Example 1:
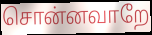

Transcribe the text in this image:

சொன்னவாறே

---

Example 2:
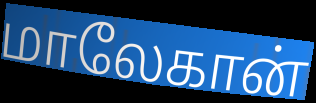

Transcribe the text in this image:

மாலேகான்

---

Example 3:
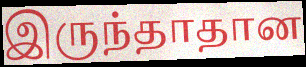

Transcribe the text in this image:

இருந்தாதான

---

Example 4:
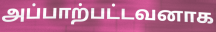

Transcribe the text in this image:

அப்பாற்பட்டவனாக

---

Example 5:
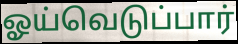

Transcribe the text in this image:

ஓய்வெடுப்பார்